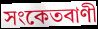
সংকেতবাণী